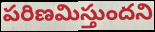
పరిణమిస్తుందని